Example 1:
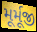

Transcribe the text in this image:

મૂર્મૂજી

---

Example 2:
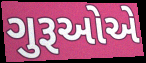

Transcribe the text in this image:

ગુરૂઓએ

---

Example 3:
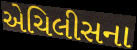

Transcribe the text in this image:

એચિલીસના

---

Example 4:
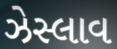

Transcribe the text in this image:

ઝેસ્લાવ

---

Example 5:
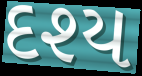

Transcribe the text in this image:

દશ્ય